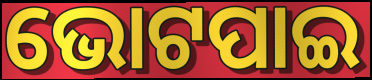
ଭୋଟପାଇ